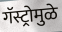
गॅस्ट्रोमुळे